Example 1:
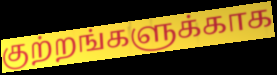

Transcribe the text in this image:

குற்றங்களுக்காக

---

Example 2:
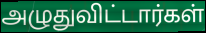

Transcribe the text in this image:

அழுதுவிட்டார்கள்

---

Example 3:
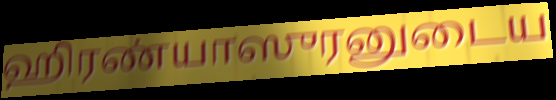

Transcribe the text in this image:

ஹிரண்யாஸுரனுடைய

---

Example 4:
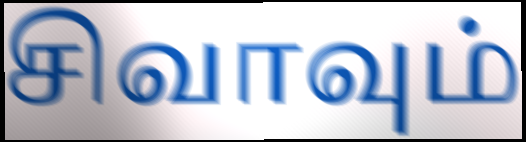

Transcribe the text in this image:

சிவாவும்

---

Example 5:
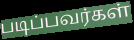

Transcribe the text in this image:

படிப்பவர்கள்